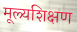
मूल्यशिक्षण